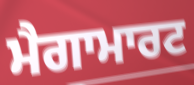
ਮੈਗਾਮਾਰਟ